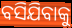
ବସିଯିବାକୁ